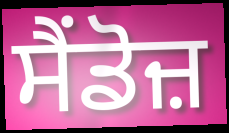
ਸੈਂਡੋਜ਼